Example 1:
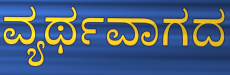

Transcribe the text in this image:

ವ್ಯರ್ಥವಾಗದ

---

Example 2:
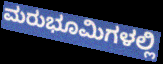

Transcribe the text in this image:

ಮರುಭೂಮಿಗಳಲ್ಲಿ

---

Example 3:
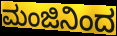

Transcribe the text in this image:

ಮಂಜಿನಿಂದ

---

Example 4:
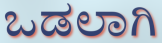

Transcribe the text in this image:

ಒಡಲಾಗಿ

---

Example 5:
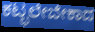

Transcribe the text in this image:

ಕಟ್ಟಲೇಬೇಕಾದ